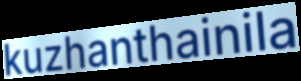
kuzhanthainila